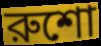
রুশো